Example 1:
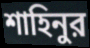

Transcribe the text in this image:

শাহিনুর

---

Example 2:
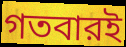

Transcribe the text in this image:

গতবারই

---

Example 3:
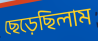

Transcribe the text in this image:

ছেড়েছিলাম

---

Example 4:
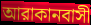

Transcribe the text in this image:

আরাকানবাসী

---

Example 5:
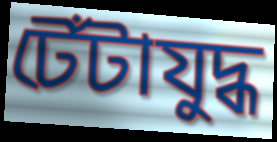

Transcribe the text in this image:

টেঁটাযুদ্ধ